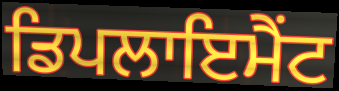
ਡਿਪਲਾਇਮੈਂਟ